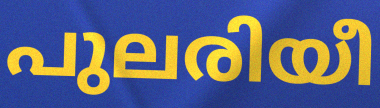
പുലരിയീ